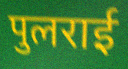
पुलराई